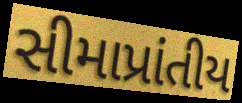
સીમાપ્રાંતીય